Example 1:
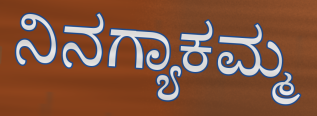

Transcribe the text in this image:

ನಿನಗ್ಯಾಕಮ್ಮ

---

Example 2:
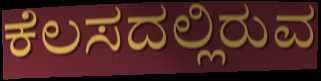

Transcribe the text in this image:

ಕೆಲಸದಲ್ಲಿರುವ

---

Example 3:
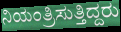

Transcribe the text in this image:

ನಿಯಂತ್ರಿಸುತ್ತಿದ್ದರು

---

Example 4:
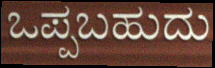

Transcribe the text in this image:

ಒಪ್ಪಬಹುದು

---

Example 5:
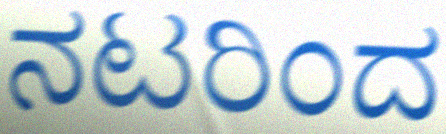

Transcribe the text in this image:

ನಟರಿಂದ